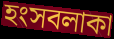
হংসবলাকা